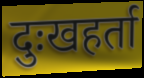
दुःखहर्ता